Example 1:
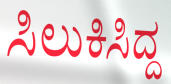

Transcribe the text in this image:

ಸಿಲುಕಿಸಿದ್ದ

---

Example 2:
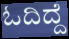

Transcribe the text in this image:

ಓದಿದ್ದೆ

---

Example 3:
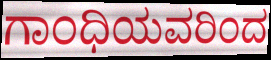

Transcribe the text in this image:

ಗಾಂಧಿಯವರಿಂದ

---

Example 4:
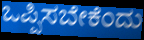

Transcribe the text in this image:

ಒಪ್ಪಿಸಬೇಕೆಂದು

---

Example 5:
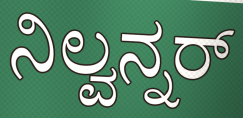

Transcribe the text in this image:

ನಿಲ್ವನ್ನರ್